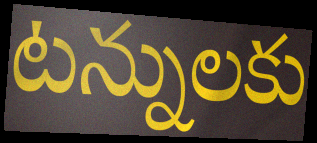
టన్నులకు